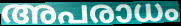
അപരാധം